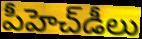
పీహెచ్‌డీలు